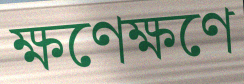
ক্ষণেক্ষণে